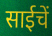
साईचें